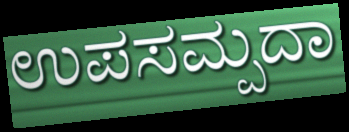
ಉಪಸಮ್ಪದಾ